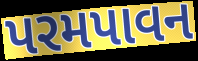
પરમપાવન